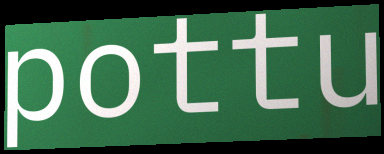
pottu